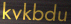
kvkbdu